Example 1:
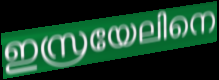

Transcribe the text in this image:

ഇസ്രയേലിനെ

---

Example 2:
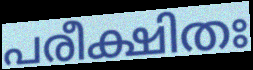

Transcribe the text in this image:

പരീക്ഷിതഃ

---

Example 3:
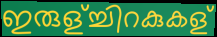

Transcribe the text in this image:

ഇരുള്ച്ചിറകുകള്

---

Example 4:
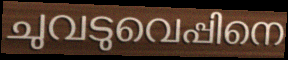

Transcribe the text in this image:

ചുവടുവെപ്പിനെ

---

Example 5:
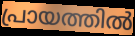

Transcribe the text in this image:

പ്രായത്തിൽ